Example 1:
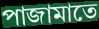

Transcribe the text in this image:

পাজামাতে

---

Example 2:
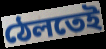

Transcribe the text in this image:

ঠেলতেই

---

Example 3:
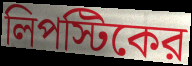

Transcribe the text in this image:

লিপস্টিকের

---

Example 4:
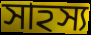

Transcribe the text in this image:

সাহস্য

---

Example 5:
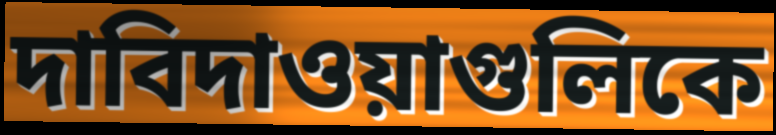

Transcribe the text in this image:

দাবিদাওয়াগুলিকে